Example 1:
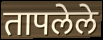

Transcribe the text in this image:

तापलेले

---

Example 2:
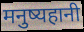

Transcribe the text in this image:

मनुष्यहानी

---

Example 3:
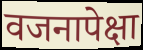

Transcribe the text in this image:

वजनापेक्षा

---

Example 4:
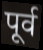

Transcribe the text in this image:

पूर्व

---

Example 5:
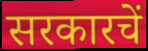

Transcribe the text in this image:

सरकारचें